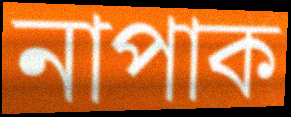
নাপাক